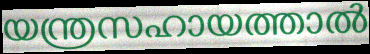
യന്ത്രസഹായത്താൽ